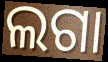
ଲଗା